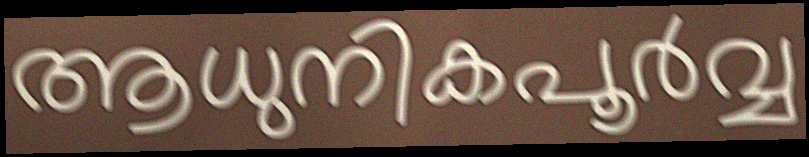
ആധുനികപൂർവ്വ